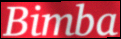
Bimba